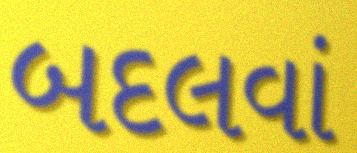
બદલવાં